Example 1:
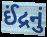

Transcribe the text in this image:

ઈંદ્રનું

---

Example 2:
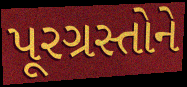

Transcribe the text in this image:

પૂરગ્રસ્તોને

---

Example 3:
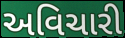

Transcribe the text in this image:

અવિચારી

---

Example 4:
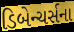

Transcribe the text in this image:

ડિબેન્ચર્સના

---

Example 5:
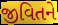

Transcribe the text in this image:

જીવિતને